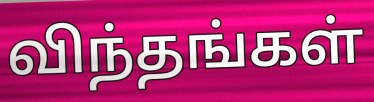
விந்தங்கள்